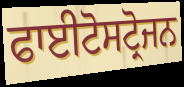
ਫਾਈਟੋਸਟ੍ਰੋਜਨ